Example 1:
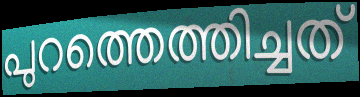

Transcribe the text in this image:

പുറത്തെത്തിച്ചത്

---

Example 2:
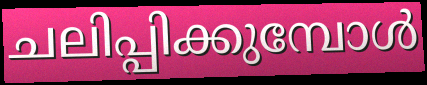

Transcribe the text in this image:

ചലിപ്പിക്കുമ്പോൾ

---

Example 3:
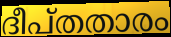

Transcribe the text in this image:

ദീപ്തതാരം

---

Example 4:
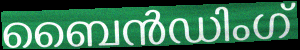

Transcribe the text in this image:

ബൈൻഡിംഗ്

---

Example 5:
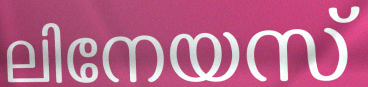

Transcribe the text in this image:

ലിനേയസ്